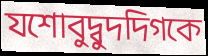
যশোবুদ্বুদদিগকে